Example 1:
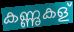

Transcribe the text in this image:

കണ്ണുകള്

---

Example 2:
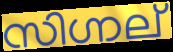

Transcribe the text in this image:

സിഗ്നല്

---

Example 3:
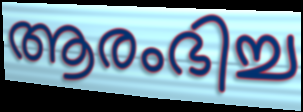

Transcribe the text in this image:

ആരംഭിച്ച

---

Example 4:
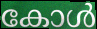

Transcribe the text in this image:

കോൾ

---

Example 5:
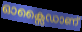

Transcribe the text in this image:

ഓക്സൈഡാണ്